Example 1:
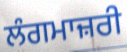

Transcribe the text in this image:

ਲੰਗਮਾਜ਼ਰੀ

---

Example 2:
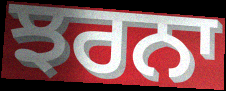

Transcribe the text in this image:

ਝਰਨਾ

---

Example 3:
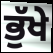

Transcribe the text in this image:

ਭੁੱਖੇ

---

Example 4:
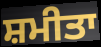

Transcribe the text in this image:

ਸ਼ਮੀਤਾ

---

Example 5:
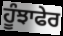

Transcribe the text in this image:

ਹੂੰਝਾਫੇਰ